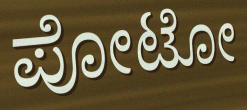
ಪೋಟೋ